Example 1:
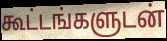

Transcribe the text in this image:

கூட்டங்களுடன்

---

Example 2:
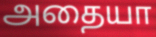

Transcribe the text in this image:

அதையா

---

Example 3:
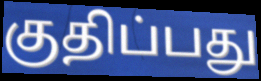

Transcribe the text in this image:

குதிப்பது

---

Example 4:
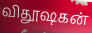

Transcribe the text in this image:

விதூஷகன்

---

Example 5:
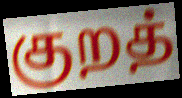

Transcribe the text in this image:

குறத்